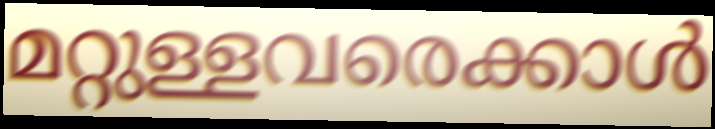
മറ്റുള്ളവരെക്കാൾ